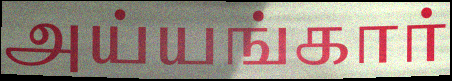
அய்யங்கார்